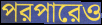
পরপারেও